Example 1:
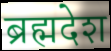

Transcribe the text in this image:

ब्रह्मदेश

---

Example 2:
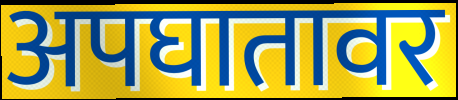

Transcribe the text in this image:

अपघातावर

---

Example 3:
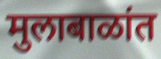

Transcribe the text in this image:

मुलाबाळांत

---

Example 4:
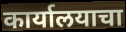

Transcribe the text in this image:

कार्यालयाचा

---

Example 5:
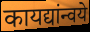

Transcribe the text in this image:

कायद्यांन्वये